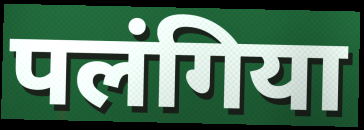
पलंगिया